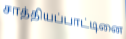
சாத்தியப்பாட்டினை